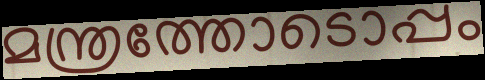
മന്ത്രത്തോടൊപ്പം